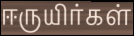
ஈருயிர்கள்